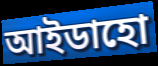
আইডাহো